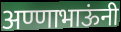
अण्णाभाऊंनी